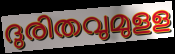
ദുരിതവുമുളള